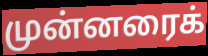
முன்னரைக்